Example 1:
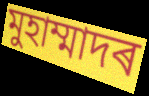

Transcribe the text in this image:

মুহাম্মাদৰ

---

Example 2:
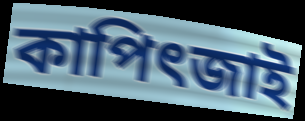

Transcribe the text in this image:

কাপিৎজাই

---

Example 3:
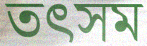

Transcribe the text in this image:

তৎসম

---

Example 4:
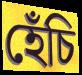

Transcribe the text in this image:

হেঁচি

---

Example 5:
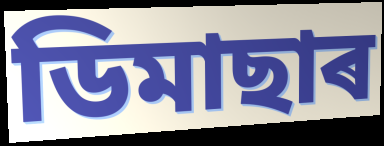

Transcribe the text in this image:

ডিমাছাৰ